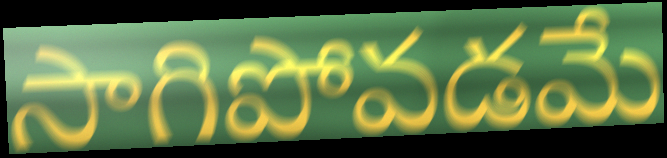
సాగిపోవడమే